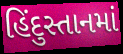
હિંદુસ્તાનમાં